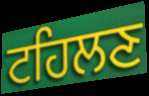
ਟਹਿਲਣ